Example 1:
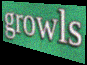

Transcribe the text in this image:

growls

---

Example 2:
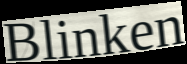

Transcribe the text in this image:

Blinken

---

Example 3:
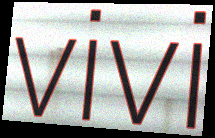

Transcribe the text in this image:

vivi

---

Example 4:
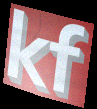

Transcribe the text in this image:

kf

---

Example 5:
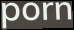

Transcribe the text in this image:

porn